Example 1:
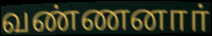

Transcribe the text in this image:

வண்ணனார்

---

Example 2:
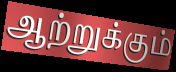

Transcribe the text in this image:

ஆற்றுக்கும்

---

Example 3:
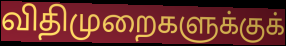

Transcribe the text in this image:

விதிமுறைகளுக்குக்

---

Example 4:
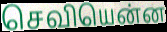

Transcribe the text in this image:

செவியென்ன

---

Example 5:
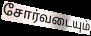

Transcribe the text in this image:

சோர்வடையும்